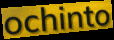
ochinto